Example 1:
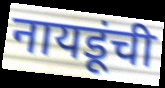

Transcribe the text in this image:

नायडूंची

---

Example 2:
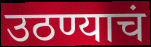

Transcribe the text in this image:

उठण्याचं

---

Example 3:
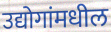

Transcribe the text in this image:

उद्योगांमधील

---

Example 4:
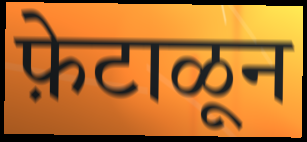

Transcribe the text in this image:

फ़ेटाळून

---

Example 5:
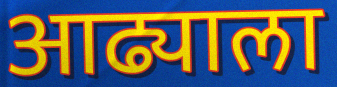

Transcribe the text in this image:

आढ्याला